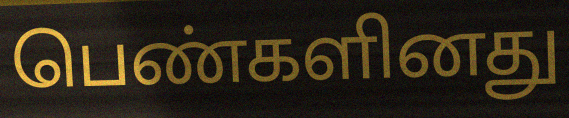
பெண்களினது